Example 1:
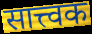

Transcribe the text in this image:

सात्त्वक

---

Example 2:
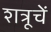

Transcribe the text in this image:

शत्रूचें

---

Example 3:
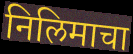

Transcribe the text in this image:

निलिमाचा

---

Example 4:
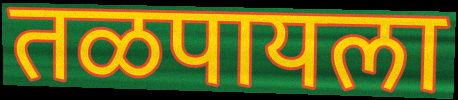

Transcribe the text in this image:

तळपायला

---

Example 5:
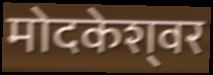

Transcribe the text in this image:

मोदकेश्वर